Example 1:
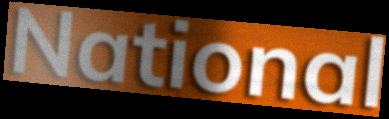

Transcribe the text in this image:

National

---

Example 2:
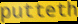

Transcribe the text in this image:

putteth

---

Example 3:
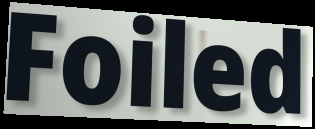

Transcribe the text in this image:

Foiled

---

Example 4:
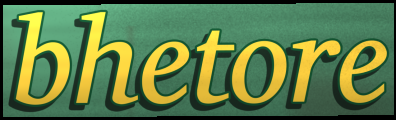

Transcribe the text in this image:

bhetore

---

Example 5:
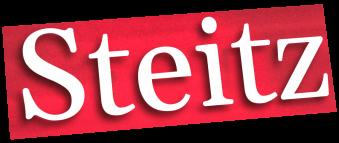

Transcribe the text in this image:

Steitz